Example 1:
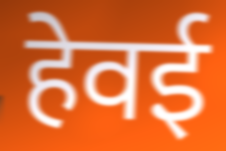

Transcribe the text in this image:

हेवई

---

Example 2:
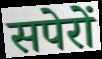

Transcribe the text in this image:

सपेरों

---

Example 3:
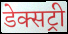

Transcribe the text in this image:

डेक्सट्री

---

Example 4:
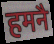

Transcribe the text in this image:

हमनै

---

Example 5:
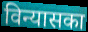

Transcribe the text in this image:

विन्यासका